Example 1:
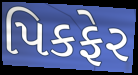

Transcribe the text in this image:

પિકફેર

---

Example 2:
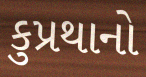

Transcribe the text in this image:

કુપ્રથાનો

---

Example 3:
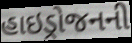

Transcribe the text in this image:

હાઇડ્રોજનની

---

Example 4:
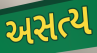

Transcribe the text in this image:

અસત્ય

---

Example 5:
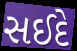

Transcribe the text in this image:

સઈદે